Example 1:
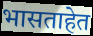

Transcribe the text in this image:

भासताहेत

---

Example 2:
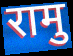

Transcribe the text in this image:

रामु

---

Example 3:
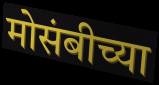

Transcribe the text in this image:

मोसंबीच्या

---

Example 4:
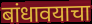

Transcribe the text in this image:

बांधावयाचा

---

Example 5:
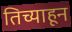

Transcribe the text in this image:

तिच्याहून